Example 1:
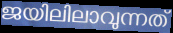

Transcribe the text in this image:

ജയിലിലാവുന്നത്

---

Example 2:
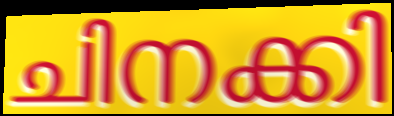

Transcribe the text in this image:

ചിനക്കി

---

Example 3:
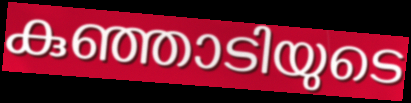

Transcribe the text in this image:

കുഞ്ഞാടിയുടെ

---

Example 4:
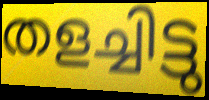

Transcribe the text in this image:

തളച്ചിട്ടു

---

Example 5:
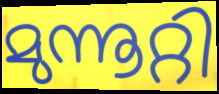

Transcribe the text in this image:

മുന്നൂറ്റി